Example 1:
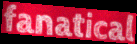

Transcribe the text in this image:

fanatical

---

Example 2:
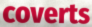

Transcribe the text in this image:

coverts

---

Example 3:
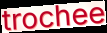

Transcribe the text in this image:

trochee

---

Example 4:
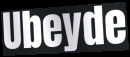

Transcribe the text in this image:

Ubeyde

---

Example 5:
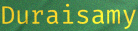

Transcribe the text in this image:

Duraisamy